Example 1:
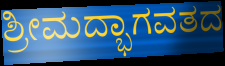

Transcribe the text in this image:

ಶ್ರೀಮದ್ಭಾಗವತದ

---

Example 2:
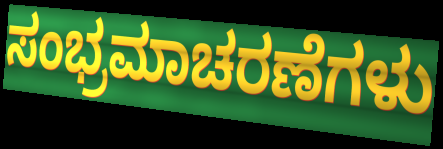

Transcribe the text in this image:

ಸಂಭ್ರಮಾಚರಣೆಗಳು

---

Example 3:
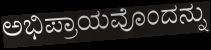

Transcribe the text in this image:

ಅಭಿಪ್ರಾಯವೊಂದನ್ನು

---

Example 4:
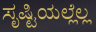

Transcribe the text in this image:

ಸೃಷ್ಟಿಯಲ್ಲೆಲ್ಲ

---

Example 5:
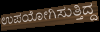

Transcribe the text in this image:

ಉಪಯೋಗಿಸುತ್ತಿದ್ದ